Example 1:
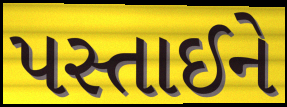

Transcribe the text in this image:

પસ્તાઈને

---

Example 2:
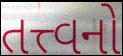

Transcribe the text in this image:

તત્ત્વનો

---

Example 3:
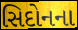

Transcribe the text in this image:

સિદોનના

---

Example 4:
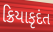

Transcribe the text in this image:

ક્રિયાકૃદંત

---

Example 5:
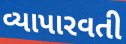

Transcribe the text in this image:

વ્યાપારવતી